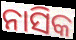
ନାସିକ